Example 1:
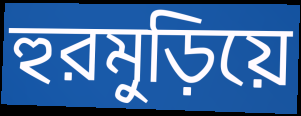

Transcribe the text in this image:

হুরমুড়িয়ে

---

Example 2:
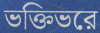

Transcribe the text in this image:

ভক্তিভরে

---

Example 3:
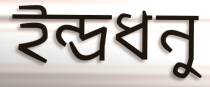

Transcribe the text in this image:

ইন্দ্রধনু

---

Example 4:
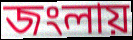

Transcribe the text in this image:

জংলায়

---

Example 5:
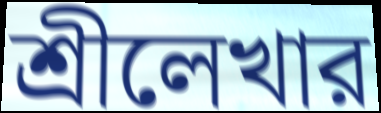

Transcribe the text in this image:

শ্রীলেখার